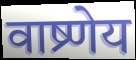
वाष्र्णेय